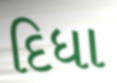
દિધા